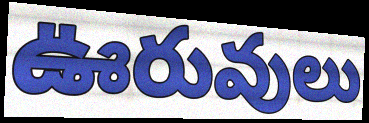
ఊరువులు